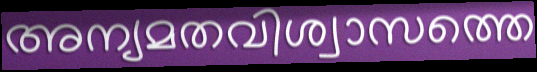
അന്യമതവിശ്വാസത്തെ